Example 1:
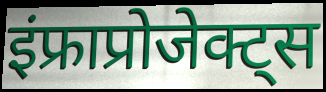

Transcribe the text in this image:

इंफ्राप्रोजेक्ट्स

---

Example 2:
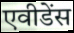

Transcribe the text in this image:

एवीडेंस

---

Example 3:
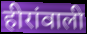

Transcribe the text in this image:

हीरांवाली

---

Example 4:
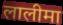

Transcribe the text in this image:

लालीमा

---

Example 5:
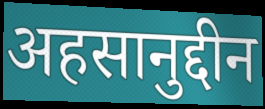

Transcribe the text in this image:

अहसानुद्दीन